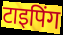
टाइपिंग